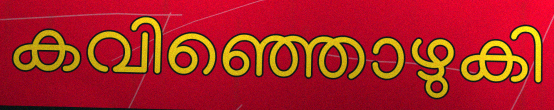
കവിഞ്ഞൊഴുകി